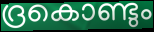
ദ്രകൊണ്ടും